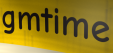
gmtime